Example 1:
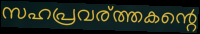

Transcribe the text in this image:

സഹപ്രവര്ത്തകന്റെ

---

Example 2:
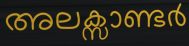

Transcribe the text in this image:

അലക്സാണ്ടർ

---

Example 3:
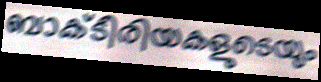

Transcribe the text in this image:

ബാക്ടീരിയകളുടെയും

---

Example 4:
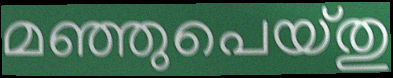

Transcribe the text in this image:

മഞ്ഞുപെയ്തു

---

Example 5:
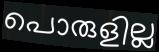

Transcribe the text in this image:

പൊരുളില്ല